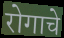
रोगाचे